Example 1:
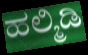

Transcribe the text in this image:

ಹಲ್ಮಿಡಿ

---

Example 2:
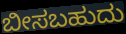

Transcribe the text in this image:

ಬೀಸಬಹುದು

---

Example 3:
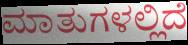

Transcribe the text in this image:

ಮಾತುಗಳಲ್ಲಿದೆ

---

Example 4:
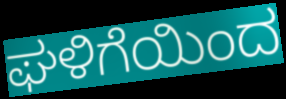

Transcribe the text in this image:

ಘಳಿಗೆಯಿಂದ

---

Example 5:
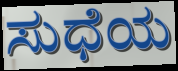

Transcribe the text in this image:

ಸುಧೆಯ